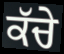
ਕੱਚੇ